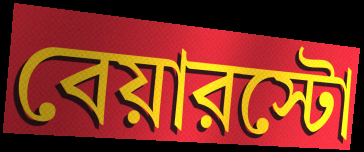
বেয়ারস্টো